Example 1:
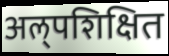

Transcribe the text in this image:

अल्पशिक्षित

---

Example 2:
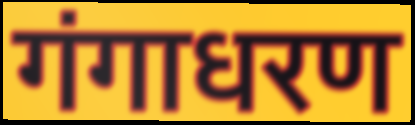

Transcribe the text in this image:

गंगाधरण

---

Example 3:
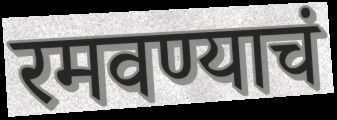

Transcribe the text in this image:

रमवण्याचं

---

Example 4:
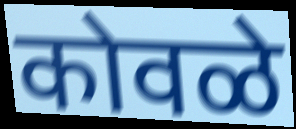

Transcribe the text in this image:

कोवळे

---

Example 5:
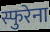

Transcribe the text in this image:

स्फुरेना